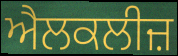
ਐਲਕਲੀਜ਼